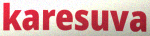
karesuva